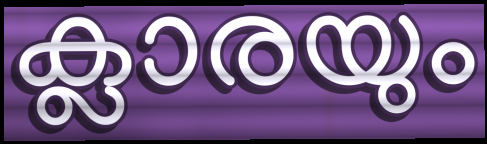
ക്ലാരയും